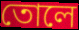
তোলে